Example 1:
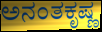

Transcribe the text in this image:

ಅನಂತಕೃಷ್ಣ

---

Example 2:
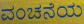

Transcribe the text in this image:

ವಂಚನೆಯ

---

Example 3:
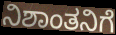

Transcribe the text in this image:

ನಿಶಾಂತನಿಗೆ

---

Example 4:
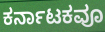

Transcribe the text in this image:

ಕರ್ನಾಟಕವೂ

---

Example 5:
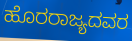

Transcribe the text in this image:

ಹೊರರಾಜ್ಯದವರ